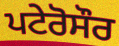
ਪਟੇਰੋਸੌਰ